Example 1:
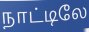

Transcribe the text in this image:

நாட்டிலே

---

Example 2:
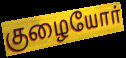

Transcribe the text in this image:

குழையோர்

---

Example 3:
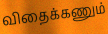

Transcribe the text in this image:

விதைக்கணும்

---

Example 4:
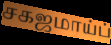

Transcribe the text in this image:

சகஜமாய்ப்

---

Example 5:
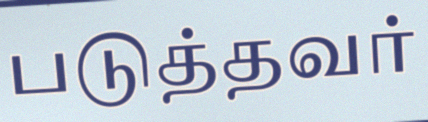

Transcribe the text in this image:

படுத்தவர்